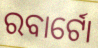
ରବାର୍ଟୋ